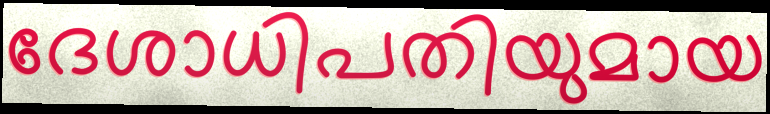
ദേശാധിപതിയുമായ